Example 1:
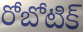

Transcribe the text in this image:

రోబోటిక్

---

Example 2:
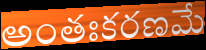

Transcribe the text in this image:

అంతఃకరణమే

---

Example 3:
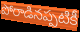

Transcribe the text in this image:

పోరాడినప్పటికీ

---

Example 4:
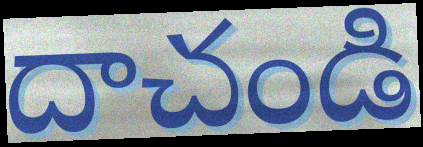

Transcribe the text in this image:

దాచండి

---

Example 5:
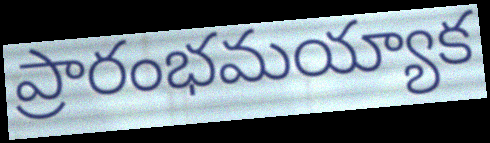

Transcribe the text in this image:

ప్రారంభమయ్యాక